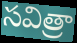
సవిత్రా